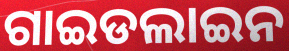
ଗାଇଡଲାଇନ